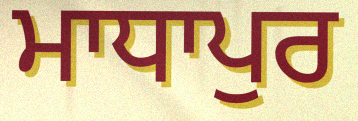
ਮਾਧਾਪੁਰ